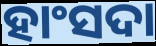
ହାଂସଦା